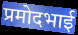
प्रमोदभाई